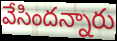
వేసిందన్నారు